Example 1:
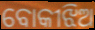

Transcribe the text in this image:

ବୋକୀଝିଅ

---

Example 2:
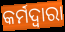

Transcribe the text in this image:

କର୍ମଦ୍ବାରା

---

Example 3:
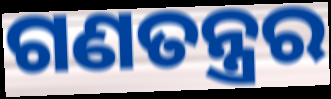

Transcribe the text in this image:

ଗଣତନ୍ତ୍ରର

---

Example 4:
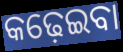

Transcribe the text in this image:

କଢ଼େଇବା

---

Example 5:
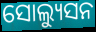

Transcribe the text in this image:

ସୋଲ୍ୟୁସନ